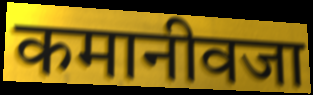
कमानीवजा